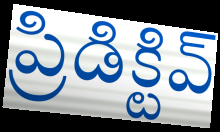
ప్రిడిక్టివ్